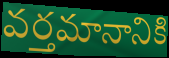
వర్తమానానికి